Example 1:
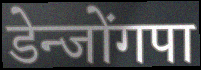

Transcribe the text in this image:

डेन्जोंगपा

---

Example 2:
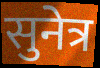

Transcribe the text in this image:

सुनेत्र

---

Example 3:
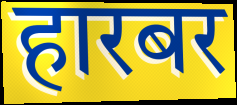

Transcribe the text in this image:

हारबर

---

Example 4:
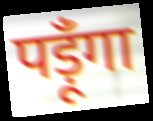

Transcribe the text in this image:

पड़ूँगा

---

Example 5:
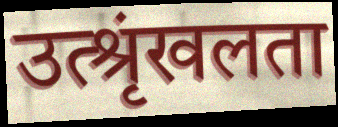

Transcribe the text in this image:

उत्श्रृंखलता